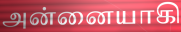
அன்னையாகி